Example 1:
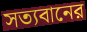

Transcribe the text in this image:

সত্যবানের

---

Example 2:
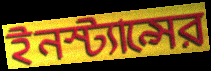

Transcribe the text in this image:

ইনস্ট্যান্সের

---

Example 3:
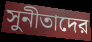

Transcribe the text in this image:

সুনীতাদের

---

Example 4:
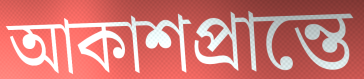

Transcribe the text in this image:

আকাশপ্রান্তে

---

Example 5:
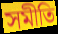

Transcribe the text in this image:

সমীতি